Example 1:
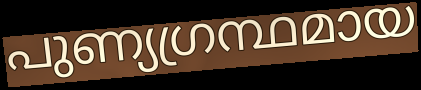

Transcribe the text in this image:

പുണ്യഗ്രന്ഥമായ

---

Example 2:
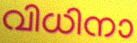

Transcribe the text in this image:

വിധിനാ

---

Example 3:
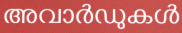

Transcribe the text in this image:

അവാർഡുകൾ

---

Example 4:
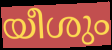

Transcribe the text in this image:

യീശും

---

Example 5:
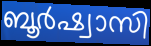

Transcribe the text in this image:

ബൂർഷ്വാസി